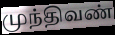
முந்திவண்